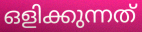
ഒളിക്കുന്നത്